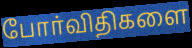
போர்விதிகளை